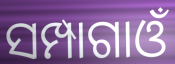
ସମ୍ପାଗାଓଁ